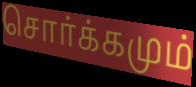
சொர்க்கமும்